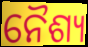
ନୈଶ୍ୟ